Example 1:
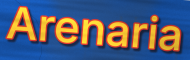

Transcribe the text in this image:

Arenaria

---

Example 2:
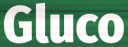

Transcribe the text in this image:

Gluco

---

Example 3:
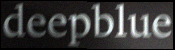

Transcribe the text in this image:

deepblue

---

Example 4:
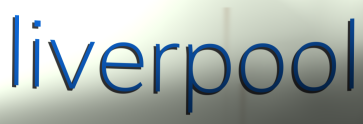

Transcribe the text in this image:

liverpool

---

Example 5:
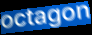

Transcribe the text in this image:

octagon